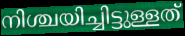
നിശ്ചയിച്ചിട്ടുള്ളത്